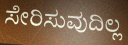
ಸೇರಿಸುವುದಿಲ್ಲ